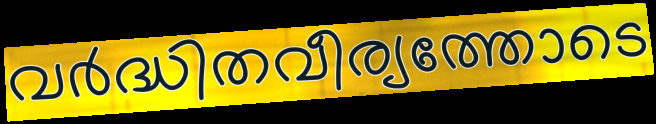
വർദ്ധിതവീര്യത്തോടെ